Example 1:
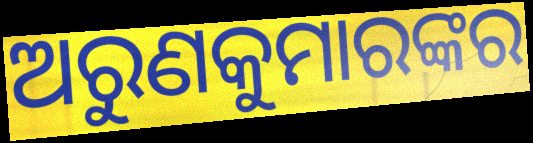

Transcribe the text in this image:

ଅରୁଣକୁମାରଙ୍କର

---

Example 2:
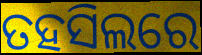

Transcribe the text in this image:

ତହସିଲରେ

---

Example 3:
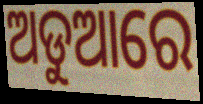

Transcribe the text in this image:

ଅଡୁଆରେ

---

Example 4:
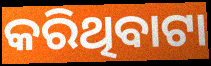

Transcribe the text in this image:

କରିଥିବାଟା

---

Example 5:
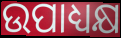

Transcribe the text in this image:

ଉପାଧ୍ୟକ୍ଷ